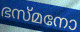
ഭസ്മനോ